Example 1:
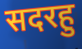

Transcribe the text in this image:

सदरहु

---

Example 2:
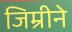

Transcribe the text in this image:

जिम्रीने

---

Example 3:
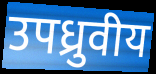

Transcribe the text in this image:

उपध्रुवीय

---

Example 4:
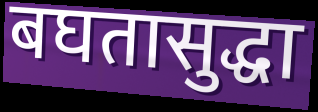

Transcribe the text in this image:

बघतासुद्धा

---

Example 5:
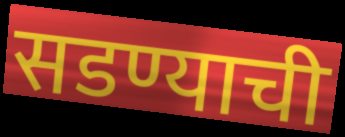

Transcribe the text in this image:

सडण्याची